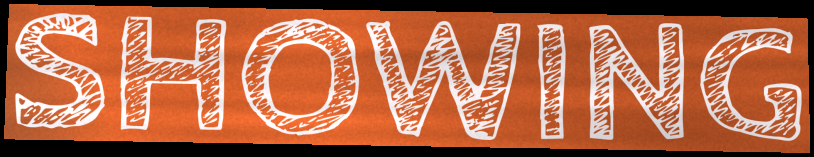
SHOWING